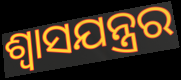
ଶ୍ୱାସଯନ୍ତ୍ରର